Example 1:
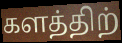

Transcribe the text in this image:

களத்திற்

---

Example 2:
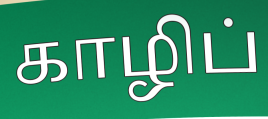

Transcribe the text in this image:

காழிப்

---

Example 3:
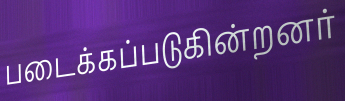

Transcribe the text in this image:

படைக்கப்படுகின்றனர்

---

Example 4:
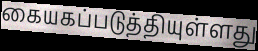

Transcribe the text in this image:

கையகப்படுத்தியுள்ளது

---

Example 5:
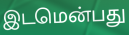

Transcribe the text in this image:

இடமென்பது